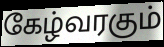
கேழ்வரகும்